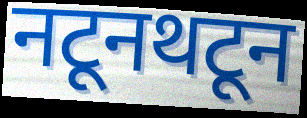
नटूनथटून